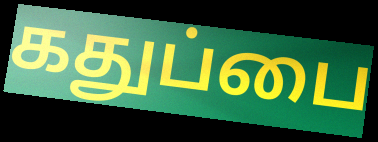
கதுப்பை